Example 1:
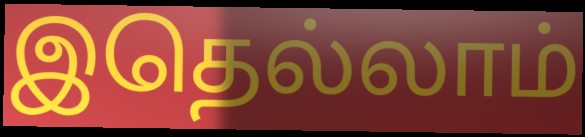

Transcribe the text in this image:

இதெல்லாம்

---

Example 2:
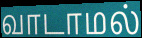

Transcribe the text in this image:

வாடாமல்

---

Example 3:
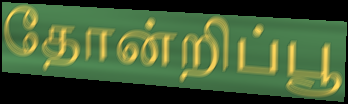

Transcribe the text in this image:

தோன்றிப்பூ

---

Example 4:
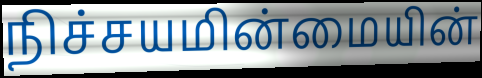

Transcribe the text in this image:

நிச்சயமின்மையின்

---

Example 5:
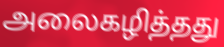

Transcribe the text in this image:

அலைகழித்தது